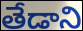
తేడాని